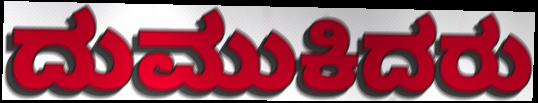
ದುಮುಕಿದರು